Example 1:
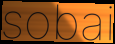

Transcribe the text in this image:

sobai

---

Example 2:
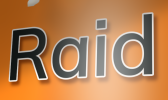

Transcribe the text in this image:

Raid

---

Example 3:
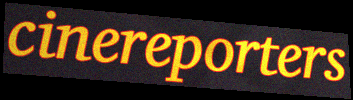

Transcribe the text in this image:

cinereporters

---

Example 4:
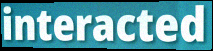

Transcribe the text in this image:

interacted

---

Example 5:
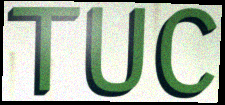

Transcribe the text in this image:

TUC